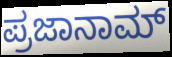
ಪ್ರಜಾನಾಮ್